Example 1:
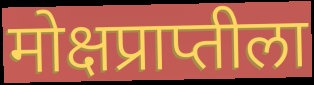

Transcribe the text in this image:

मोक्षप्राप्तीला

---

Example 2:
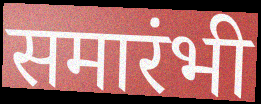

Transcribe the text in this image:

समारंभी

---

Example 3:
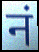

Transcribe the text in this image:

नं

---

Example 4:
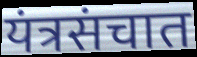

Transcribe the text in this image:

यंत्रसंचात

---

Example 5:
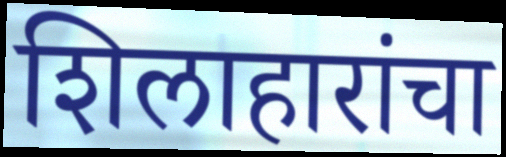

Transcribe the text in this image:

शिलाहारांचा